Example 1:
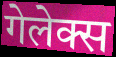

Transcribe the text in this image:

गेलेक्स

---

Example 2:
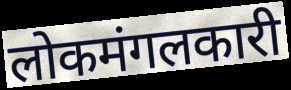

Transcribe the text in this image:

लोकमंगलकारी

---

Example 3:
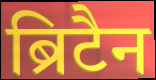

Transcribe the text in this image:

ब्रिटैन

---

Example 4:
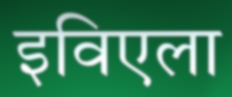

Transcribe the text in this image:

इविएला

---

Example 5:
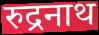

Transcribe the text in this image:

रुद्रनाथ